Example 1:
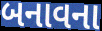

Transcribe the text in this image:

બનાવના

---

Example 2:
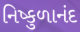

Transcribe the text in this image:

નિષ્કુળાનંદ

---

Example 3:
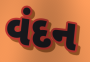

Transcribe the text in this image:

વંદન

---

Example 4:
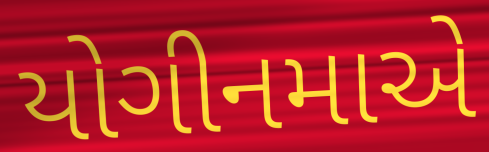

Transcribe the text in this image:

યોગીનમાએ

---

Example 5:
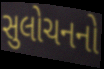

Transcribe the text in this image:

સુલોચનનો